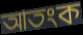
আতংক